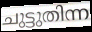
ചുട്ടുതിന്ന